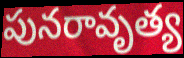
పునరావృత్య